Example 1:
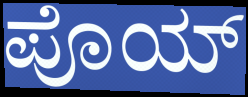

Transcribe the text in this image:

ಪೊಯ್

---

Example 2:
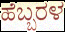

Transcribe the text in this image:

ಹೆಬ್ಬರಳ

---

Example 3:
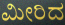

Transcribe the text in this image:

ಮೀರಿದ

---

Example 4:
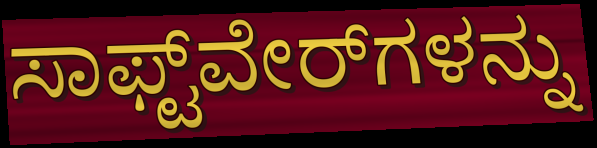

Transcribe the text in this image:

ಸಾಫ್ಟ್‌ವೇರ್‌ಗಳನ್ನು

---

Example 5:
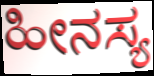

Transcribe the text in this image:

ಹೀನಸ್ಯ